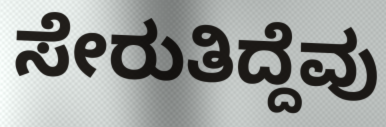
ಸೇರುತಿದ್ದೆವು